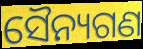
ସୈନ୍ୟଗଣ